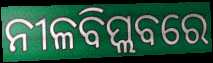
ନୀଳବିପ୍ଲବରେ